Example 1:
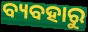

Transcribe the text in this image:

ବ୍ୟବହାରୁ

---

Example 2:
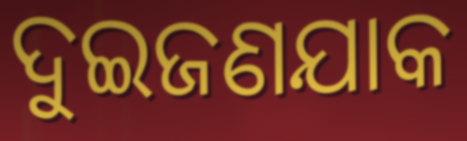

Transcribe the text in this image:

ଦୁଇଜଣଯାକ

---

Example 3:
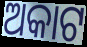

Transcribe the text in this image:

ଅକାଟ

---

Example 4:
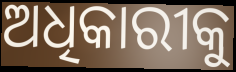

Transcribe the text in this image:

ଅଧିକାରୀକୁ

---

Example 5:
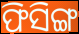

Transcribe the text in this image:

ଫିସିଙ୍ଗ